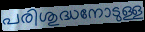
പരിശുദ്ധനോടുള്ള